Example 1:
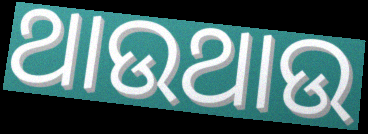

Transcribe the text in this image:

ଥାଉଥାଉ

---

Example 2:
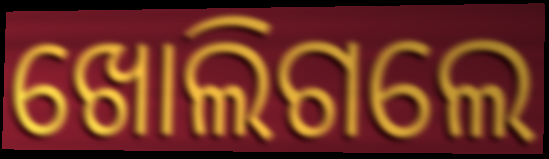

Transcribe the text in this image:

ଖୋଲିଗଲେ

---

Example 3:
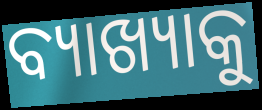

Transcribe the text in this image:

ବ୍ୟାଖ୍ୟାକୁ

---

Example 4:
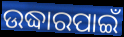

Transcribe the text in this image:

ଉଦ୍ଧାରପାଇଁ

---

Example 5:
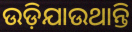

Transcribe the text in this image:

ଉଡ଼ିଯାଉଥାନ୍ତି